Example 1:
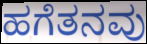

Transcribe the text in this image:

ಹಗೆತನವು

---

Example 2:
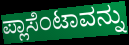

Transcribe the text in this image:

ಪ್ಲಾಸೆಂಟಾವನ್ನು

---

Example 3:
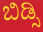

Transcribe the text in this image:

ಬಿಡ್ಸಿ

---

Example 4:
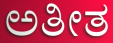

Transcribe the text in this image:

ಅತೀತ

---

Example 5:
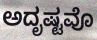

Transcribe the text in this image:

ಅದೃಷ್ಟವೊ